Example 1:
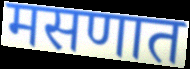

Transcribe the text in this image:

मसणात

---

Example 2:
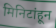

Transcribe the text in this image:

मिनिटांहून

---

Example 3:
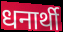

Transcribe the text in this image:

धनार्थी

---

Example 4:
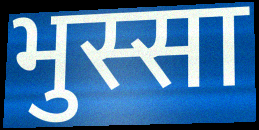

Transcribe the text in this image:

भुस्सा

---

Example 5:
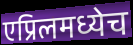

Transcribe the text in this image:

एप्रिलमध्येच